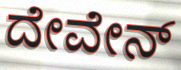
ದೇವೇನ್